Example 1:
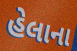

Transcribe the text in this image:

હેલાના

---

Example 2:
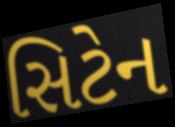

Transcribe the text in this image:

સિટેન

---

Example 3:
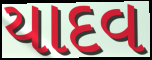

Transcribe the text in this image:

યાદવ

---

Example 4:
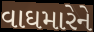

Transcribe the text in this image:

વાઘમારેને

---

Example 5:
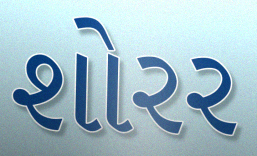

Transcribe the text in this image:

શોરર